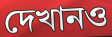
দেখানও